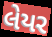
લેયર